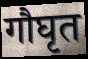
गौघृत